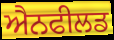
ਐਨਫੀਲਡ